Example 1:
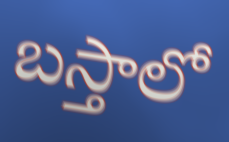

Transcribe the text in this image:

బస్తాలో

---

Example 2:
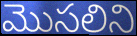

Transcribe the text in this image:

మొసలిని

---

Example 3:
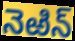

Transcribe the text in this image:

నెఱిన్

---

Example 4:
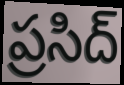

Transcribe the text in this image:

ప్రసిద్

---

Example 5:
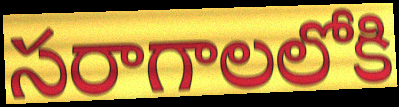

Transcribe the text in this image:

సరాగాలలోకి